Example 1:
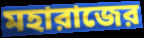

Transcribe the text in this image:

মহারাজের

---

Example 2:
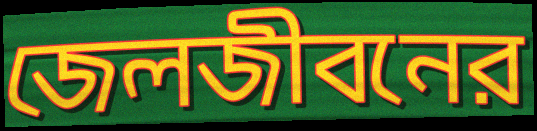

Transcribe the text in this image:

জেলজীবনের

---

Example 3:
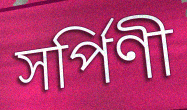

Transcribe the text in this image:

সর্পিণী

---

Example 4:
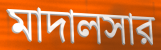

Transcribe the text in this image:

মাদালসার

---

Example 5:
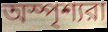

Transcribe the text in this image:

অস্পৃশ্যরা